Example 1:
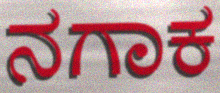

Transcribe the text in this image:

ನಗಾಕ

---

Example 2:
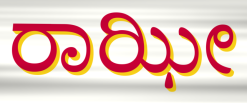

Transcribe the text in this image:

ರಾಝೀ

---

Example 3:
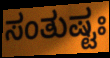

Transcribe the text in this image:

ಸಂತುಷ್ಟಃ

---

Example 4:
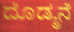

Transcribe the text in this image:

ದೊಡ್ಮನೆ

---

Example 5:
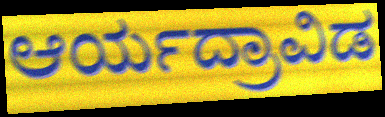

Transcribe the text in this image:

ಆರ್ಯದ್ರಾವಿಡ